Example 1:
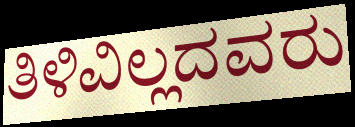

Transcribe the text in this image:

ತಿಳಿವಿಲ್ಲದವರು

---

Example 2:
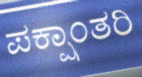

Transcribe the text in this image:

ಪಕ್ಷಾಂತರಿ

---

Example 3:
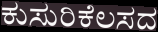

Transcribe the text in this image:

ಕುಸುರಿಕೆಲಸದ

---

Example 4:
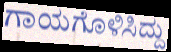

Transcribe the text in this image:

ಗಾಯಗೊಳಿಸಿದ್ದು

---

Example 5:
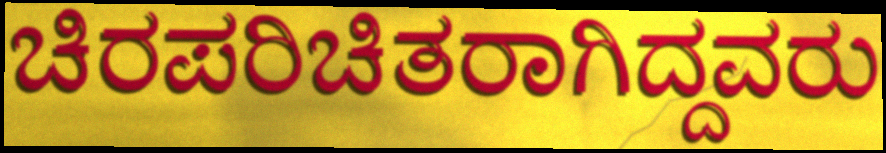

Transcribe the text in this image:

ಚಿರಪರಿಚಿತರಾಗಿದ್ದವರು